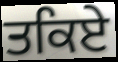
ਤਕਿਏ